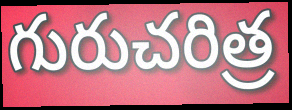
గురుచరిత్ర